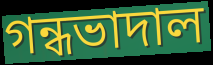
গন্ধভাদাল